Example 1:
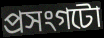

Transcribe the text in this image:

প্ৰসংগটো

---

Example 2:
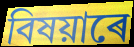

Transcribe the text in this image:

বিষয়াৰে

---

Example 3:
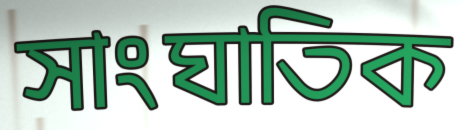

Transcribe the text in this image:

সাংঘাতিক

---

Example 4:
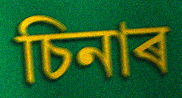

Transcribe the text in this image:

চিনাৰ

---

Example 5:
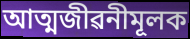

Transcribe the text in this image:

আত্মজীৱনীমূলক